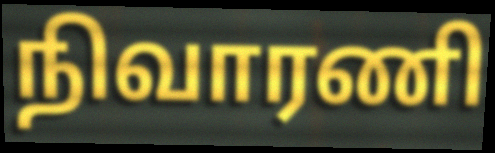
நிவாரணி